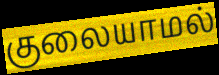
குலையாமல்